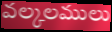
వల్కలములు